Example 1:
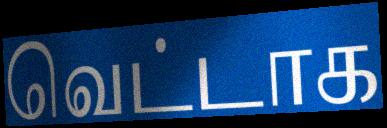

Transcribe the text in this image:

வெட்டாக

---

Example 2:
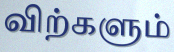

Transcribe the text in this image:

விற்களும்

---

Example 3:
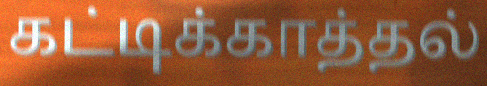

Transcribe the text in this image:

கட்டிக்காத்தல்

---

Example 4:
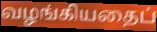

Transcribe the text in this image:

வழங்கியதைப்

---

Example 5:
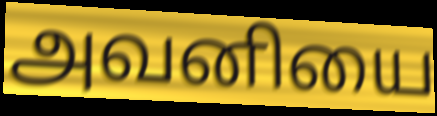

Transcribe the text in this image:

அவனியை